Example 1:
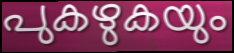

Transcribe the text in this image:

പുകഴുകയും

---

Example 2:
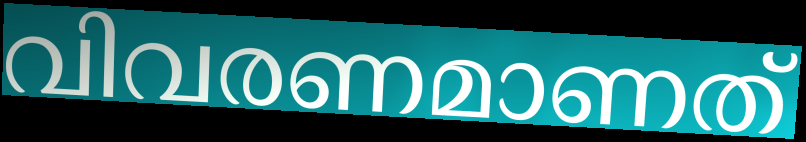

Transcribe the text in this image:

വിവരണമാണത്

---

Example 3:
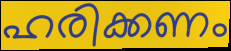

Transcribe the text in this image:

ഹരിക്കണം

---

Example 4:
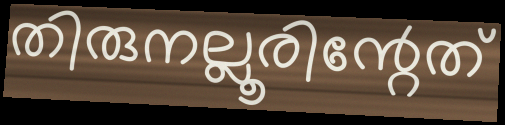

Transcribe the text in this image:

തിരുനല്ലൂരിന്റേത്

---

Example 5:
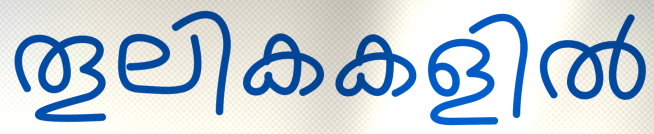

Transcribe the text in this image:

തൂലികകളിൽ